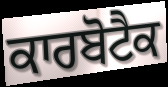
ਕਾਰਬੋਟੈਕ